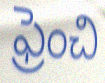
ఫ్రెంచి